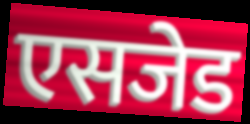
एसजेड